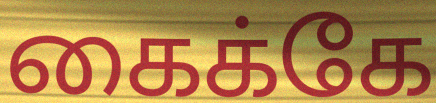
கைக்கே